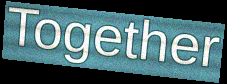
Together